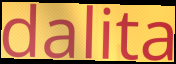
dalita